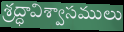
శ్రద్ధావిశ్వాసములు